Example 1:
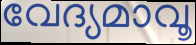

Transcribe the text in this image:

വേദ്യമാവൂ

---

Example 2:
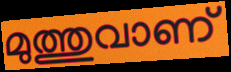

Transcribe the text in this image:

മുത്തുവാണ്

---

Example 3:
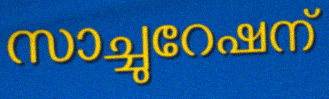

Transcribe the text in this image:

സാച്ചുറേഷന്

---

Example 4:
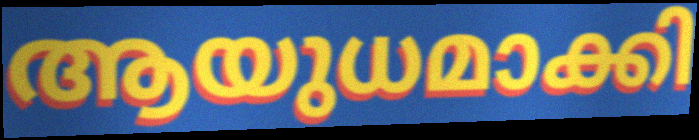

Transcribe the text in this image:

ആയുധമാക്കി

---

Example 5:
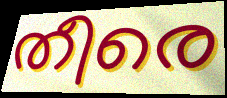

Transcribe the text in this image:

തീരെ